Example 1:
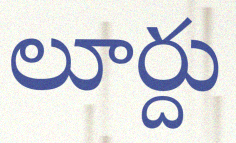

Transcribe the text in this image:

లూర్దు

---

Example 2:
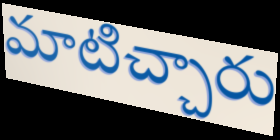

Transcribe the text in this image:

మాటిచ్చారు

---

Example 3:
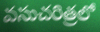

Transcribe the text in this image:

వసుచరిత్రలో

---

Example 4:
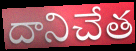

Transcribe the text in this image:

దానిచేత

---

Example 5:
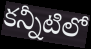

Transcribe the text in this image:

కన్నీటిలో